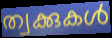
ത്വക്കുകൾ